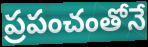
ప్రపంచంతోనే